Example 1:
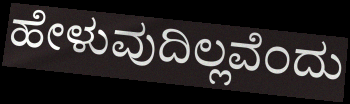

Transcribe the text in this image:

ಹೇಳುವುದಿಲ್ಲವೆಂದು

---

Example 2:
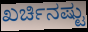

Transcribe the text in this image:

ಖರ್ಚಿನಷ್ಟು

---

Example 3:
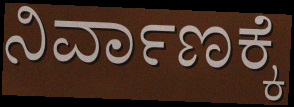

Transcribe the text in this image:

ನಿರ್ವಾಣಕ್ಕೆ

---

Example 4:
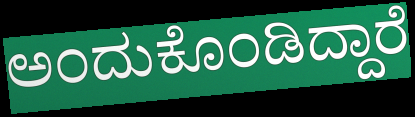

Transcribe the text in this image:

ಅಂದುಕೊಂಡಿದ್ದಾರೆ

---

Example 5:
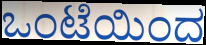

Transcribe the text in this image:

ಒಂಟೆಯಿಂದ